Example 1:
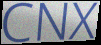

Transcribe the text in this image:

CNX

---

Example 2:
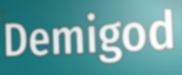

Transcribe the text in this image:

Demigod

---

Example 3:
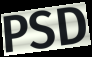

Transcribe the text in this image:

PSD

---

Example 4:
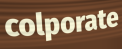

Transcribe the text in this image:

colporate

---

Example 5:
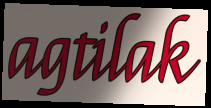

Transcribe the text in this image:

agtilak